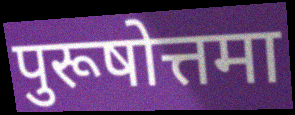
पुरूषोत्तमा